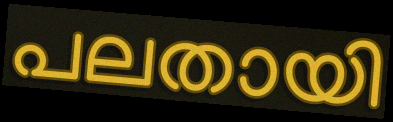
പലതായി